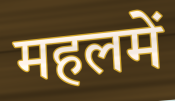
महलमें